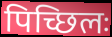
पिच्छिलः